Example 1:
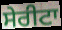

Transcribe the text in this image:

ਸੇਰੀਟਾ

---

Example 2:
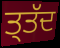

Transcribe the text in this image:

ਤ੍ਤੱਦ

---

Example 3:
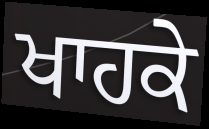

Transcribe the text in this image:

ਖਾਹਕੇ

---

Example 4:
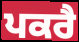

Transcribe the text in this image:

ਪਕਰੈ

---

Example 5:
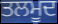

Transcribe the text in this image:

ਤਲਮੂਦ